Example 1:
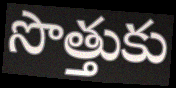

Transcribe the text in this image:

సొత్తుకు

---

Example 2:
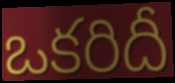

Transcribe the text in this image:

ఒకరిదీ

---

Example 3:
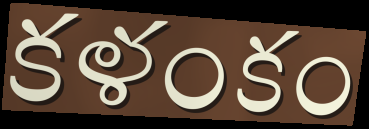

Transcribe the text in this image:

కళంకం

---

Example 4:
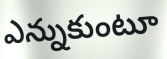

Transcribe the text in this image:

ఎన్నుకుంటూ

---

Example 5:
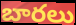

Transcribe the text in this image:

బారలు